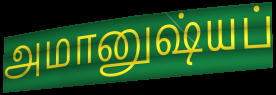
அமானுஷ்யப்